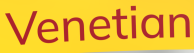
Venetian